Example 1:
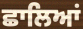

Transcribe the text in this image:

ਛਾਲਿਆਂ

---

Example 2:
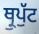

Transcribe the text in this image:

ਥ੍ਰੁਪੁੱਟ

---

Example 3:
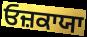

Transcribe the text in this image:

ਓਜ਼ਕਾਯਾ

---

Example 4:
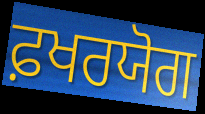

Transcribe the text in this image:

ਫ਼ਖਰਯੋਗ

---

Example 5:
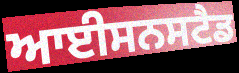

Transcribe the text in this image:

ਆਈਸਨਸਟੈਡ